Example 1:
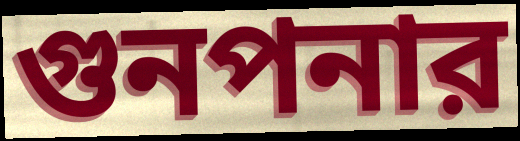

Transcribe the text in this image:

গুনপনার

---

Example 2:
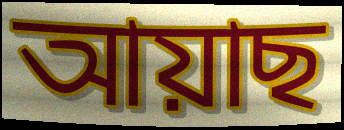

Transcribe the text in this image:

আয়াছ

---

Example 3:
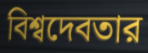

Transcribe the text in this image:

বিশ্বদেবতার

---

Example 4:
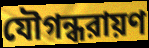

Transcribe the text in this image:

যৌগন্ধরায়ণ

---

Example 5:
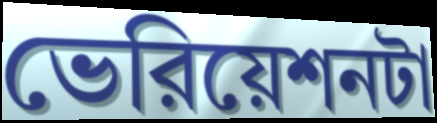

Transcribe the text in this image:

ভেরিয়েশনটা